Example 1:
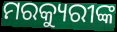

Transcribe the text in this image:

ମରକ୍ୟୁରୀଙ୍କ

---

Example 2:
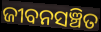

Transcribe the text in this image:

ଜୀବନସଞ୍ଚିତ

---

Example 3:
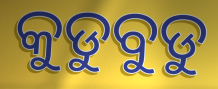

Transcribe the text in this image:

କୁଡୁବୁଡୁ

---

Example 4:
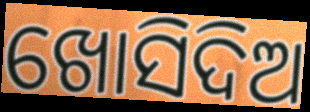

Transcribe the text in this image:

ଖୋସିଦିଅ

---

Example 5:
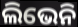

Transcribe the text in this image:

ଲିଭେନି